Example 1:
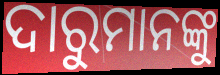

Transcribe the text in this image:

ଦାରୁମାନଙ୍କୁ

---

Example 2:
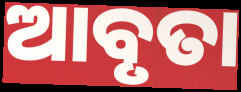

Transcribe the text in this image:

ଆବୃତା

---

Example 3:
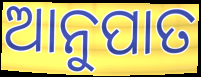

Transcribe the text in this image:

ଆନୁପାତ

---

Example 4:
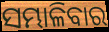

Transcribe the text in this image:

ସମ୍ଭାଳିବାର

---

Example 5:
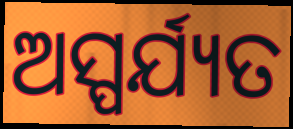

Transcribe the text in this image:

ଅସ୍ପର୍ଯ୍ୟତ